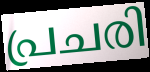
പ്രചരി